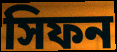
সিফন